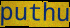
puthu